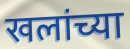
खलांच्या